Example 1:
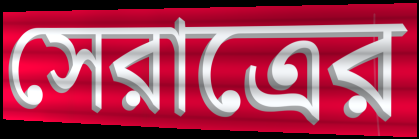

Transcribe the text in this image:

সেরাত্রের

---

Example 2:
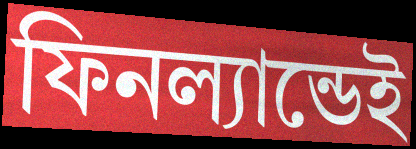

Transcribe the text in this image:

ফিনল্যান্ডেই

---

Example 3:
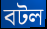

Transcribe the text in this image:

বটল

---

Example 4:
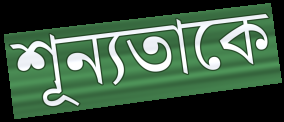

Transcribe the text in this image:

শূন্যতাকে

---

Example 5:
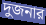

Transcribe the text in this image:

দুজনার